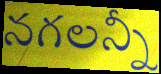
నగలన్నీ